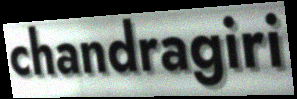
chandragiri